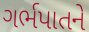
ગર્ભપાતને